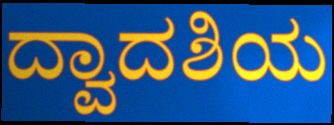
ದ್ವಾದಶಿಯ